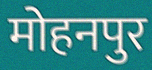
मोहनपुर